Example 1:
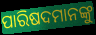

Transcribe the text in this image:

ପାରିଷଦମାନଙ୍କୁ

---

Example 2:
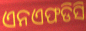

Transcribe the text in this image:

ଏନଏଫଡିସି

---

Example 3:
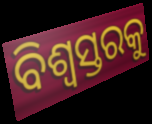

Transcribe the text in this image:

ବିଶ୍ୱସ୍ତରକୁ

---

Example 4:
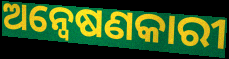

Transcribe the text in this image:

ଅନ୍ୱେଷଣକାରୀ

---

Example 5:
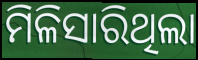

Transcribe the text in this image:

ମିଳିସାରିଥିଲା